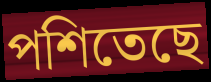
পশিতেছে